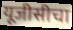
यूजीसीचा